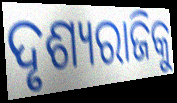
ଦୃଶ୍ୟରାଜିକୁ